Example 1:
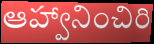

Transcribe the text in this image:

ఆహ్వానించిరి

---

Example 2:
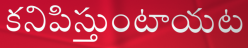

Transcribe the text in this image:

కనిపిస్తుంటాయట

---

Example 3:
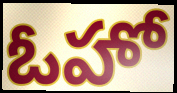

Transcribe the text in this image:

ఓహో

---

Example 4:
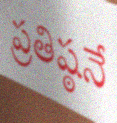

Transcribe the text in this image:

ప్రతిష్ఠనే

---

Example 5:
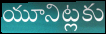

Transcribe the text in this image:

యూనిట్లకు